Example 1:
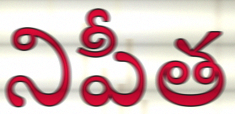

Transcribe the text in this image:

నిపీత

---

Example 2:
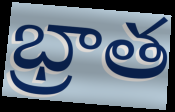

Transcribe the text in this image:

భ్రాత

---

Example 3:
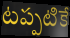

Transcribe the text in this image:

టప్పటికే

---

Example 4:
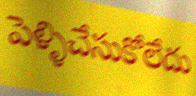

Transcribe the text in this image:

పెళ్ళిచేసుకోలేదు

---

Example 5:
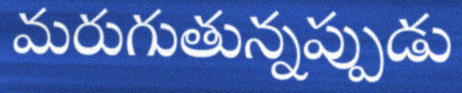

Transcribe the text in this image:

మరుగుతున్నప్పుడు